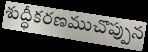
శుద్ధీకరణముచొప్పున